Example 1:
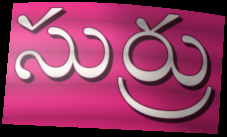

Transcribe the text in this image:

సుర్రు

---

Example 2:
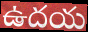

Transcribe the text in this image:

ఉదయ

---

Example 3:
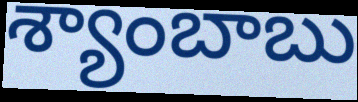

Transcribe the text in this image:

శ్యాంబాబు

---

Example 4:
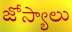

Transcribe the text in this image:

జోస్యాలు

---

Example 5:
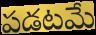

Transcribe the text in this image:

పడటమే